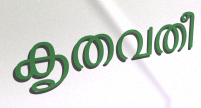
കൃതവതീ